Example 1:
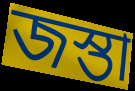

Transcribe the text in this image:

জস্তা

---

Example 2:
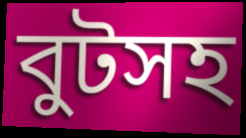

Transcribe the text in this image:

বুটসহ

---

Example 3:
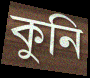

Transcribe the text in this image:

কুনি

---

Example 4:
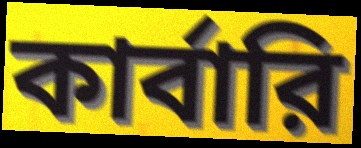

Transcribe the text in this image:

কার্বারি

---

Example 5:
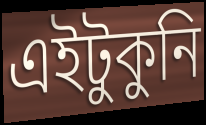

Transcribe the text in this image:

এইটুকুনি